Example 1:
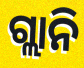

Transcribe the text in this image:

ଗ୍ଲାନି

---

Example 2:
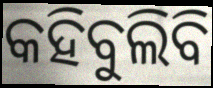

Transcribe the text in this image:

କହିବୁଲିବି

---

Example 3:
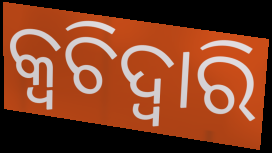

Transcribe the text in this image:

କ୍ଵଚିଦ୍ୱାରି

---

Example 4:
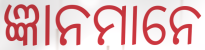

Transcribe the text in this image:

ଜ୍ଞାନମାନେ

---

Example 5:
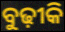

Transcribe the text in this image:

ବୁଢ଼ୀକି